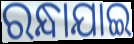
ରନ୍ଧାଯାଇ